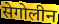
सेगोलीन